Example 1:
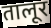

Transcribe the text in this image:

तालूर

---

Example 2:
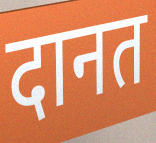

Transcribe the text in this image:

दानत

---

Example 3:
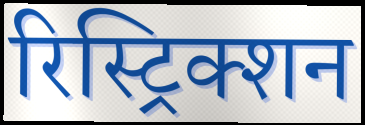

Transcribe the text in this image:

रिस्ट्रिक्शन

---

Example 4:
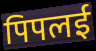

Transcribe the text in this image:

पिपलई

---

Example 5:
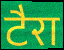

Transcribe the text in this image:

टैरा